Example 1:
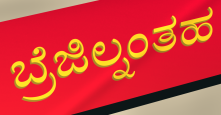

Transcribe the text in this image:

ಬ್ರೆಜಿಲ್ನಂತಹ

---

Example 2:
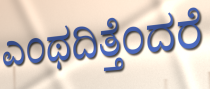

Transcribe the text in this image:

ಎಂಥದಿತ್ತೆಂದರೆ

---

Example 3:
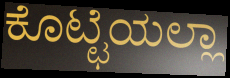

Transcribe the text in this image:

ಕೊಟ್ಟೆಯಲ್ಲಾ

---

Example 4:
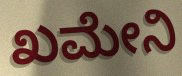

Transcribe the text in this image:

ಖಮೇನಿ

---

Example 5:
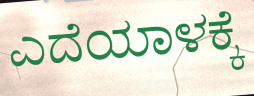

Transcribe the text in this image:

ಎದೆಯಾಳಕ್ಕೆ